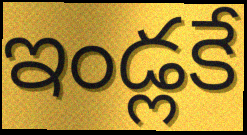
ఇండ్లకే